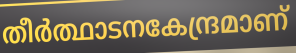
തീർത്ഥാടനകേന്ദ്രമാണ്